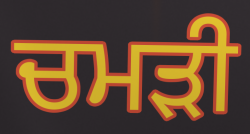
ਚਮਡ਼ੀ